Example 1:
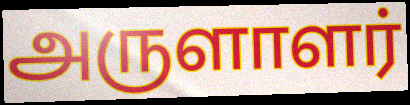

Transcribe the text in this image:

அருளாளர்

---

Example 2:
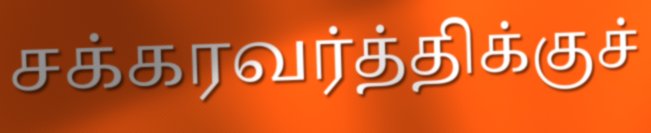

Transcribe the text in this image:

சக்கரவர்த்திக்குச்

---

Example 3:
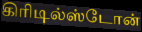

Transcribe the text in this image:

கிரிடில்ஸ்டோன்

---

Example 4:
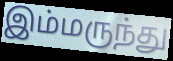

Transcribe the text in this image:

இம்மருந்து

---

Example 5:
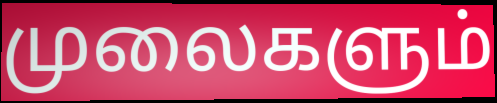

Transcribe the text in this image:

முலைகளும்